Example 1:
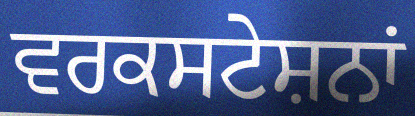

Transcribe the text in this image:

ਵਰਕਸਟੇਸ਼ਨਾਂ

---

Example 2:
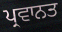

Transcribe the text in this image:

ਪ੍ਰਵਾਨਤ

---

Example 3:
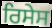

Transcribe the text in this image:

ਰਿਸੇਸ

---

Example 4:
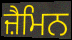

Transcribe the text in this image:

ਜ਼ੈਮਿਨ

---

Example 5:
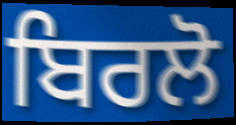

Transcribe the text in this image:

ਬਿਰਲੋ